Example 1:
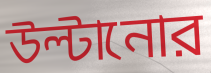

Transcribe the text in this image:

উল্টানোর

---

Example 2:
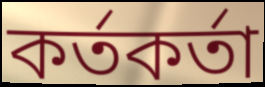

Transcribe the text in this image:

কর্তকর্তা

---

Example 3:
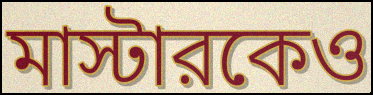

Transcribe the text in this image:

মাস্টারকেও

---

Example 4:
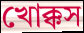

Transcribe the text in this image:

খোক্কস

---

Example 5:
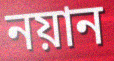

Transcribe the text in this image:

নয়ান